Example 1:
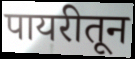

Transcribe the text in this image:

पायरीतून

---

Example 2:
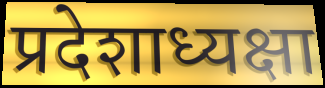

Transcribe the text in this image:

प्रदेशाध्यक्षा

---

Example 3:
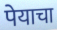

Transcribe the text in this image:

पेयाचा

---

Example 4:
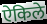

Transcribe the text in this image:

ऐकिले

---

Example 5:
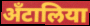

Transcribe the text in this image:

अँटालिया